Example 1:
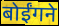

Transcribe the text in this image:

बोईंगने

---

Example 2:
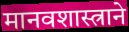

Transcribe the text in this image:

मानवशास्त्राने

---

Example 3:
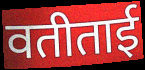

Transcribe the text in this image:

वतीताई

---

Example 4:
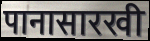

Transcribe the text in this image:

पानासारखी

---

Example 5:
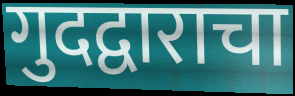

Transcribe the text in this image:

गुदद्वाराचा